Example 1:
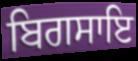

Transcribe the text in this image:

ਬਿਗਸਾਇ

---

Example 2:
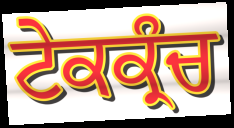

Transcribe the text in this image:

ਟੇਕਕ੍ਰੰਚ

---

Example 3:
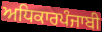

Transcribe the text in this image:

ਅਧਿਕਾਰਪੰਜਾਬੀ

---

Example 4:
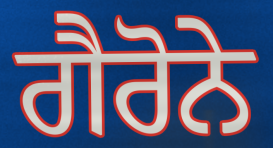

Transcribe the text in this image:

ਗੈਰੋਨੇ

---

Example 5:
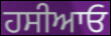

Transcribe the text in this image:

ਹਸੀਆਓ